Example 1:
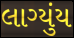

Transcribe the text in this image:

લાગ્યુંય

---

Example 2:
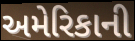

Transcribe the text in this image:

અમેરિકાની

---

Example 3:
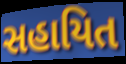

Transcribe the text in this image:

સહાયિત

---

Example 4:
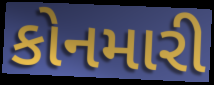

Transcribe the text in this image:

કોનમારી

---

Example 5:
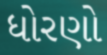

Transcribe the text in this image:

ધોરણો